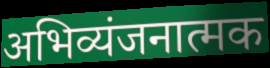
अभिव्यंजनात्मक